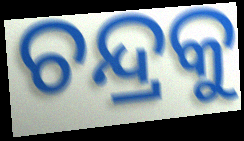
ଚନ୍ଦ୍ରକୁ